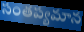
సంతప్యమాన